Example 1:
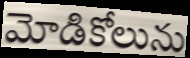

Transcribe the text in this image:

మోడికోలును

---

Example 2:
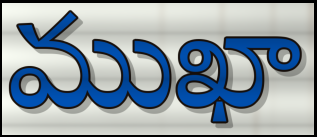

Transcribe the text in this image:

ముఖా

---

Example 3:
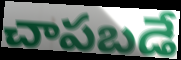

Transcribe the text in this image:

చాపబడే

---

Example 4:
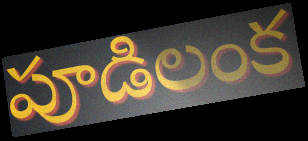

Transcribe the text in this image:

పూడిలంక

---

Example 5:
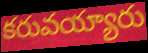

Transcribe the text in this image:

కరువయ్యారు